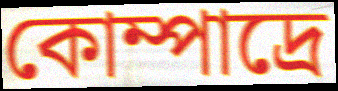
কোম্পাদ্রে